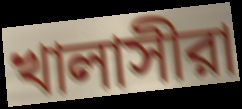
খালাসীরা